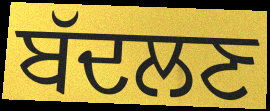
ਬੱਦਲਣ